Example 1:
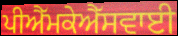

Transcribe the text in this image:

ਪੀਐੱਮਕੇਐੱਸਵਾਈ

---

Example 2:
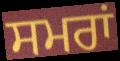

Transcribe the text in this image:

ਸਮਰਾਂ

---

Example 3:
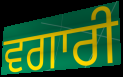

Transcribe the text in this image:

ਵਗਾਰੀ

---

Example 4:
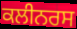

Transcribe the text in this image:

ਕਲੀਨਰਸ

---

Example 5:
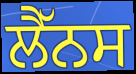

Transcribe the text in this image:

ਲੈੱਨਸ